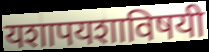
यशापयशाविषयी